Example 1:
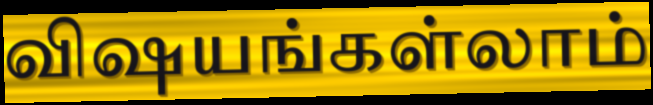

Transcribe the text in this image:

விஷயங்கள்லாம்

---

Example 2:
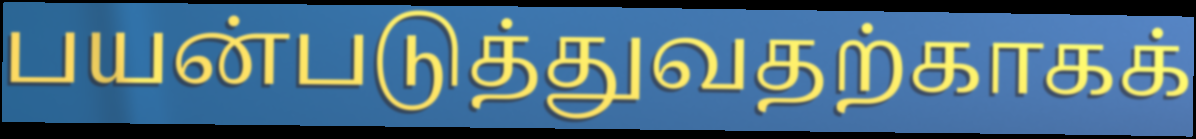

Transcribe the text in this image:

பயன்படுத்துவதற்காகக்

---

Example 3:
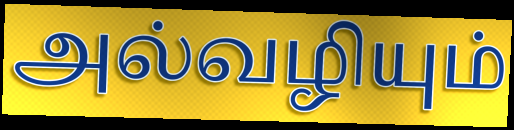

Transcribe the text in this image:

அல்வழியும்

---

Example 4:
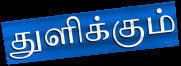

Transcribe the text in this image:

துளிக்கும்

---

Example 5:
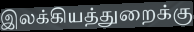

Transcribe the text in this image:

இலக்கியத்துறைக்கு